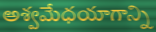
అశ్వమేధయాగాన్ని